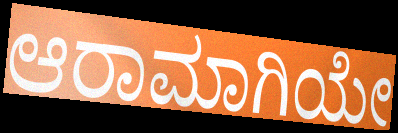
ಆರಾಮಾಗಿಯೇ